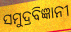
ସମୁଦ୍ରବିଜ୍ଞାନୀ